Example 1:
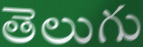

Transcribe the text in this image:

తెలుగు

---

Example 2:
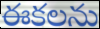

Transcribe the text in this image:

ఈకలను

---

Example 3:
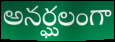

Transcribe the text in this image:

అనర్ఘలంగా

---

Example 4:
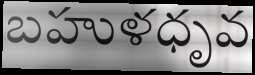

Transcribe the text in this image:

బహుళధృవ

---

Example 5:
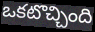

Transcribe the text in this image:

ఒకటొచ్చింది